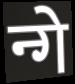
न्गे